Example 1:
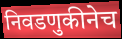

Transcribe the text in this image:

निवडणुकीनेच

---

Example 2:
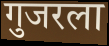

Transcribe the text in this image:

गुजरला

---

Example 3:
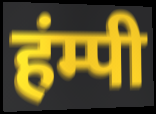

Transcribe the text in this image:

हंम्पी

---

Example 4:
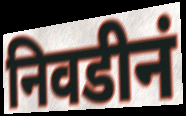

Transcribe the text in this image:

निवडीनं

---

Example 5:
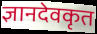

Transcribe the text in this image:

ज्ञानदेवकृत